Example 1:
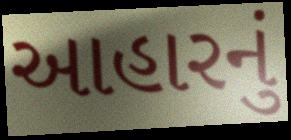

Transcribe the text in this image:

આહારનું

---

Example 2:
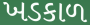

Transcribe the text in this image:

ખડકાળ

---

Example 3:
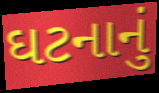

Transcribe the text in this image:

ઘટનાનું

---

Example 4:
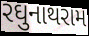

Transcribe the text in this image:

રઘુનાથરામ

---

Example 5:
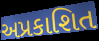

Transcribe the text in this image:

અપ્રકાશિત